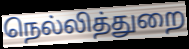
நெல்லித்துறை